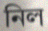
নিল